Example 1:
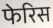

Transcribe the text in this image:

फेरिस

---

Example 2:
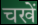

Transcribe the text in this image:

चखें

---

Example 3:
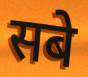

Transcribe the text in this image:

सबे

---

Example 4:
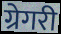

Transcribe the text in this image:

ग्रेगरी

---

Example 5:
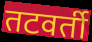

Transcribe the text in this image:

तटवर्ती